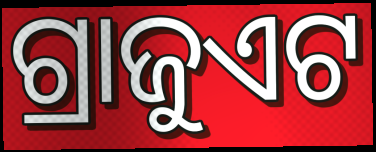
ଗ୍ରାଜୁଏଟ